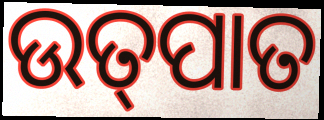
ଉତ୍‌ପାତ